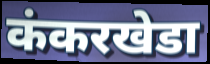
कंकरखेडा